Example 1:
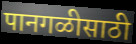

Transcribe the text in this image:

पानगळीसाठी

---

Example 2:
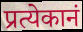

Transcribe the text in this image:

प्रत्येकानं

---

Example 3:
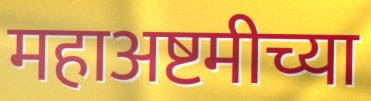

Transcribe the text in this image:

महाअष्टमीच्या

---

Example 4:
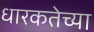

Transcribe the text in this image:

धारकतेच्या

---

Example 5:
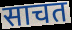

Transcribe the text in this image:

साचत